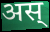
अस्